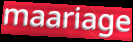
maariage